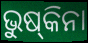
ଭୁଷ୍‌କିନା